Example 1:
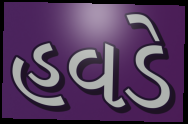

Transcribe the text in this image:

હવડે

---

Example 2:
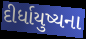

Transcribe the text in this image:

દીર્ધાયુષ્યના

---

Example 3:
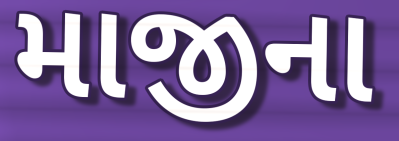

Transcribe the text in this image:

માજીના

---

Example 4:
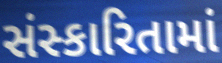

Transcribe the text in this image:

સંસ્કારિતામાં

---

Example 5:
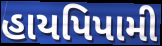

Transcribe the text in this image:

હાયપિપામી